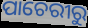
ପାଚେରୀରୁ